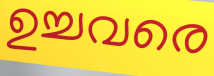
ഉച്ചവരെ